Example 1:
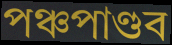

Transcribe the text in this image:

পঞ্চপাণ্ডব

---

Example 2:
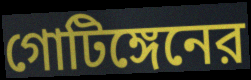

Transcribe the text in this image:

গোটিঙ্গেনের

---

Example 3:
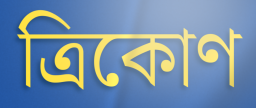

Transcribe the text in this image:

ত্রিকোণ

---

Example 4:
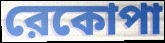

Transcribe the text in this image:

রেকোপা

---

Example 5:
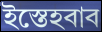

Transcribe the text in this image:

ইস্তেহবাব